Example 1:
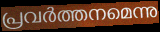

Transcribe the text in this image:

പ്രവർത്തനമെന്നു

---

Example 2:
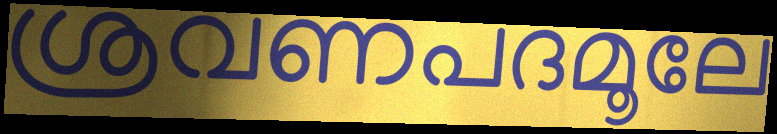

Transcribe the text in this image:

ശ്രവണപദമൂലേ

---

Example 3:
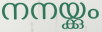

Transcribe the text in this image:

നനയ്ക്കും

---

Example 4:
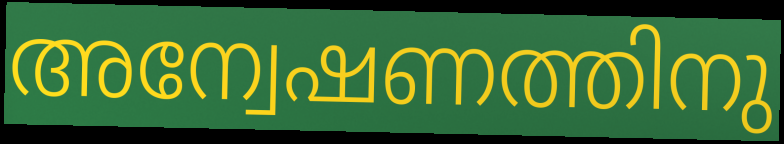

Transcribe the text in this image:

അന്വേഷണത്തിനു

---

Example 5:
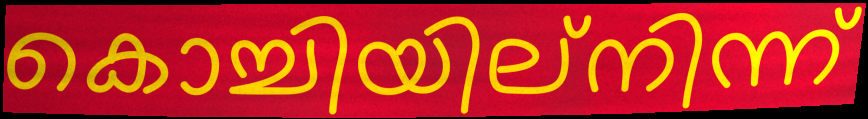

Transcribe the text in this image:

കൊച്ചിയില്നിന്ന്